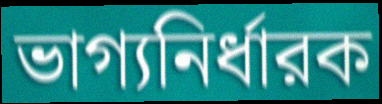
ভাগ্যনির্ধারক